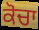
ਕੋਚਾ